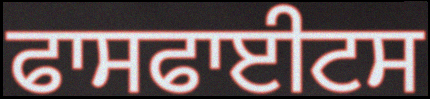
ਫਾਸਫਾਈਟਸ